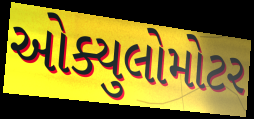
ઓક્યુલોમોટર